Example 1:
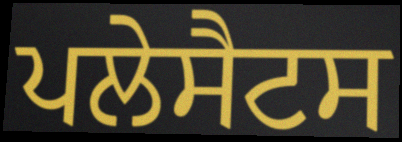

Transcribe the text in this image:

ਪਲੇਸੈਟਸ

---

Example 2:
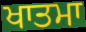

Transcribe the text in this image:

ਖਾਤਮਾ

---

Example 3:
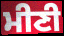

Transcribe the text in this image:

ਮੀਣੀ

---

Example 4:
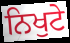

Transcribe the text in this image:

ਨਿਖੁਟੇ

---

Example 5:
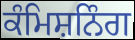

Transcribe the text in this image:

ਕੰਮਿਸ਼ਨਿੰਗ